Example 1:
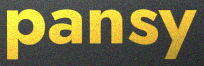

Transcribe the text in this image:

pansy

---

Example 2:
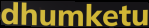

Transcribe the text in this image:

dhumketu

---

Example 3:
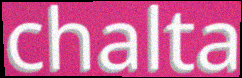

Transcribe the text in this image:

chalta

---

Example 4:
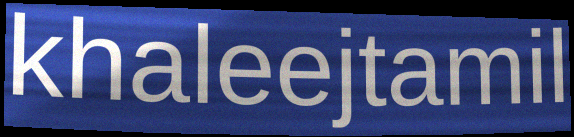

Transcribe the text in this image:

khaleejtamil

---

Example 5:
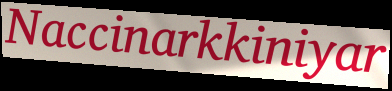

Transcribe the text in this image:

Naccinarkkiniyar